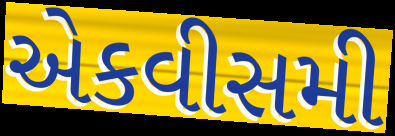
એકવીસમી